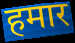
हमार